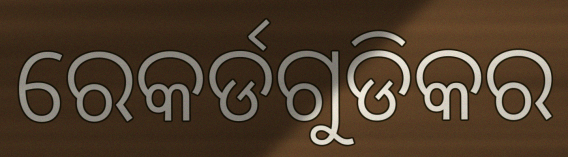
ରେକର୍ଡଗୁଡିକର